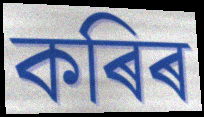
কৰিৰ